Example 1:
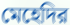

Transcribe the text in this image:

মেহেদির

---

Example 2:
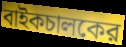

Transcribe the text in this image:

বাইকচালকের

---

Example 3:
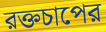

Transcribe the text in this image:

রক্তচাপের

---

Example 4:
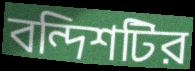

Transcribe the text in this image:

বন্দিশটির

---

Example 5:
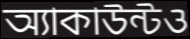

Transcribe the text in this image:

অ্যাকাউন্টও